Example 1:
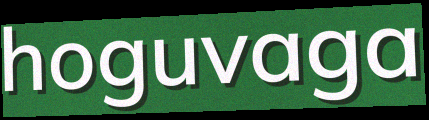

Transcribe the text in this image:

hoguvaga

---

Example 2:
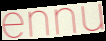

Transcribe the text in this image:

ennu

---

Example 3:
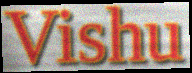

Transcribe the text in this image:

Vishu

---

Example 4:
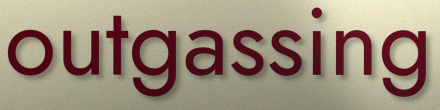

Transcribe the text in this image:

outgassing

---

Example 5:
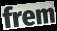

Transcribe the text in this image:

frem